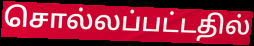
சொல்லப்பட்டதில்